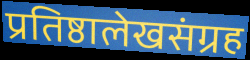
प्रतिष्ठालेखसंग्रह